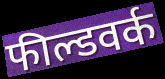
फील्डवर्क